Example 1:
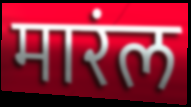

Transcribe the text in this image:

मारंल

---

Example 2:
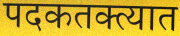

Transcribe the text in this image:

पदकतक्त्यात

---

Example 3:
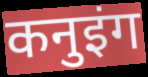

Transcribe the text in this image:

कनुइंग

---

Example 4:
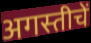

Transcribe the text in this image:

अगस्तीचें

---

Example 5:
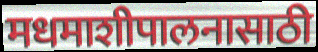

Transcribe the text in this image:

मधमाशीपालनासाठी